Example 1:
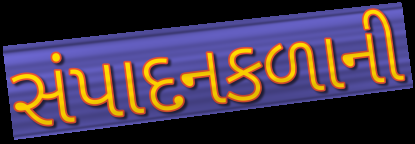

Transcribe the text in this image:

સંપાદનકળાની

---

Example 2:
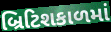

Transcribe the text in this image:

બ્રિટિશકાળમાં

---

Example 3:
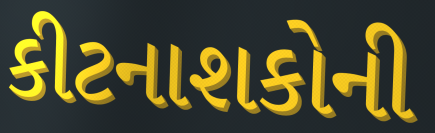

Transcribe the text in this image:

કીટનાશકોની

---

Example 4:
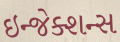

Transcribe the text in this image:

ઇન્જેક્શન્સ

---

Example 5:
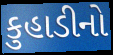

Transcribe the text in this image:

કુહાડીનો